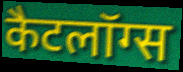
कैटलॉग्स